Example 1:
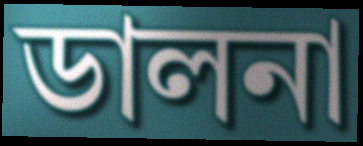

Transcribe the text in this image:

ডালনা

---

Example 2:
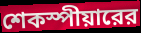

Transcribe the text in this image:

শেকস্পীয়ারের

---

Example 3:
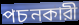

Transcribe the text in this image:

পচনকারী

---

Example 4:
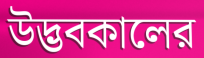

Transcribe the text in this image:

উদ্ভবকালের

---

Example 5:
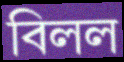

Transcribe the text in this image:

বিলল